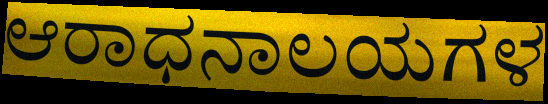
ಆರಾಧನಾಲಯಗಳ